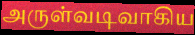
அருள்வடிவாகிய